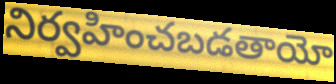
నిర్వహించబడతాయో